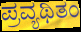
ಪ್ರವ್ಯಥಿತಂ